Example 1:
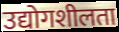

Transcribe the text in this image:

उद्योगशीलता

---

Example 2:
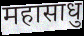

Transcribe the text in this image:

महासाधु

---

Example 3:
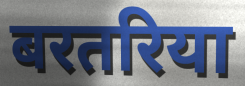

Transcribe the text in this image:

बरतरिया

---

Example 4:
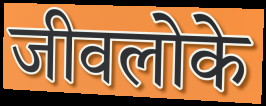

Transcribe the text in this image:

जीवलोके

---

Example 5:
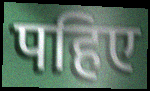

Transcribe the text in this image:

पहिए